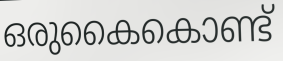
ഒരുകൈകൊണ്ട്